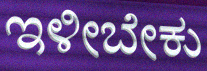
ಇಳೀಬೇಕು